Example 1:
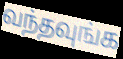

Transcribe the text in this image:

வந்தவுங்க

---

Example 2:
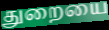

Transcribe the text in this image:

துறையை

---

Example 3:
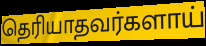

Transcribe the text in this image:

தெரியாதவர்களாய்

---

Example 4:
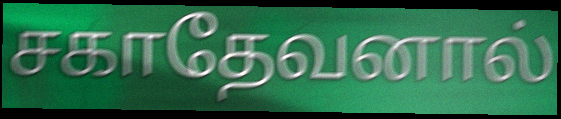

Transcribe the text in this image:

சகாதேவனால்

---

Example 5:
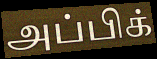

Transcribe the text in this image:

அப்பிக்